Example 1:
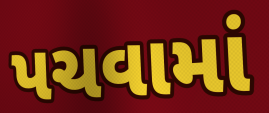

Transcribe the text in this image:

પચવામાં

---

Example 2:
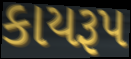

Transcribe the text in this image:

કાયરૂપ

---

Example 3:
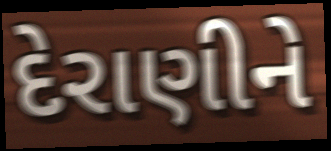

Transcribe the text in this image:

દેરાણીને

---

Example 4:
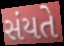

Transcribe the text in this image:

સંયતે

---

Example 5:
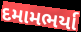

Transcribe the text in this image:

દમામભર્યા